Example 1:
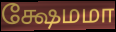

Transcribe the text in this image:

க்ஷேமமா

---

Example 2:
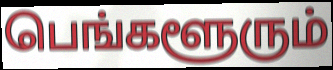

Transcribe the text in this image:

பெங்களூரும்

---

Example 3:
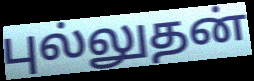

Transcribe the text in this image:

புல்லுதன்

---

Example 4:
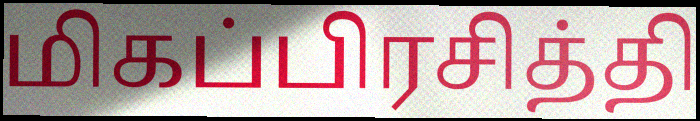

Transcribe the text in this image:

மிகப்பிரசித்தி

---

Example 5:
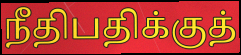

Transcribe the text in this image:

நீதிபதிக்குத்